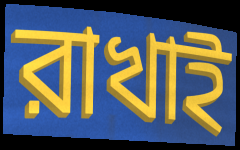
রাখাই